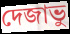
দেজাভু